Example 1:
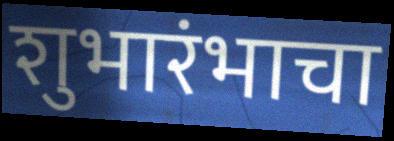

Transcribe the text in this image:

शुभारंभाचा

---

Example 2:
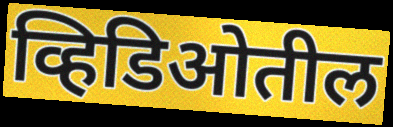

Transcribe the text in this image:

व्हिडिओतील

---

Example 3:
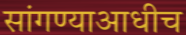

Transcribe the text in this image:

सांगण्याआधीच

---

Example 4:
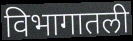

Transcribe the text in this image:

विभागातली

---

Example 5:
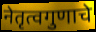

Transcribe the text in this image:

नेतृत्वगुणाचे